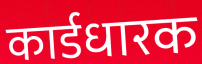
कार्डधारक